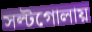
সল্টগোলায়